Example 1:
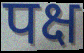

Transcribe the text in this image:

पक्ष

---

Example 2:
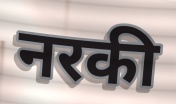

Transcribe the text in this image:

नरकी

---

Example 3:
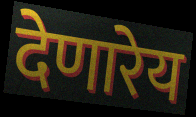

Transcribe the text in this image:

देणारेय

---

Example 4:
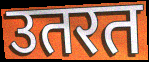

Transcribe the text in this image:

उतरत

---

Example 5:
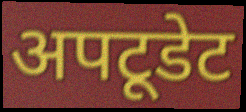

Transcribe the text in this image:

अपटूडेट